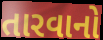
તારવાનો